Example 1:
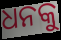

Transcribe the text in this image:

ଧନକୁ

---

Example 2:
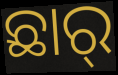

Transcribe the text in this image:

ଛାର୍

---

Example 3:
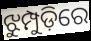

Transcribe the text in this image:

ଝୁମ୍ପୁଡ଼ିରେ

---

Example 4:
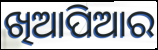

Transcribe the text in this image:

ଖିଆପିଆର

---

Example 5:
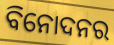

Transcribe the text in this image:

ବିନୋଦନର